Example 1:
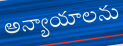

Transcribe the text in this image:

అన్యాయాలను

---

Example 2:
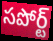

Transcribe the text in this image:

సపోర్ట్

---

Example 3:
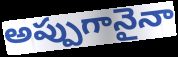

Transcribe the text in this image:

అప్పుగానైనా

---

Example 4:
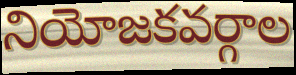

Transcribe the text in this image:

నియోజకవర్గాల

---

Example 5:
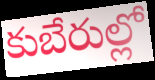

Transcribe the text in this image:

కుబేరుల్లో